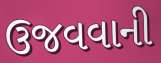
ઉજવવાની